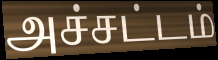
அச்சட்டம்